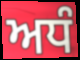
ਅਧੰ